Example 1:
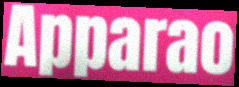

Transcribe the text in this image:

Apparao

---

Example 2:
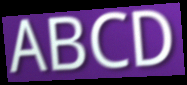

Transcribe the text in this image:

ABCD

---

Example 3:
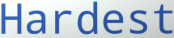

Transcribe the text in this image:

Hardest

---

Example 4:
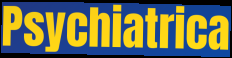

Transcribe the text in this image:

Psychiatrica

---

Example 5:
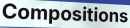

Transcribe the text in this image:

Compositions